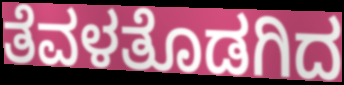
ತೆವಳತೊಡಗಿದ